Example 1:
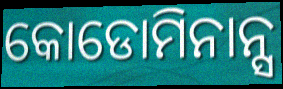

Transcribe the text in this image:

କୋଡୋମିନାନ୍ସ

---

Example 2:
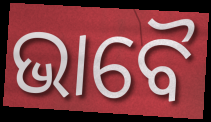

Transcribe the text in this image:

ଭାବୈ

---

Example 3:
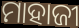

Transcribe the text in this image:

ମାହାଜୀ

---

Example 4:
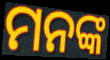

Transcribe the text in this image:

ମନଙ୍କ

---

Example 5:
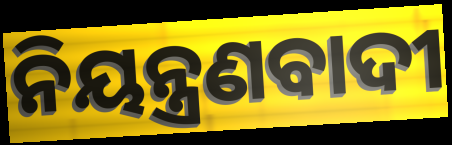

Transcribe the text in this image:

ନିୟନ୍ତ୍ରଣବାଦୀ